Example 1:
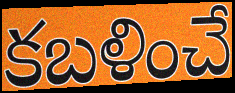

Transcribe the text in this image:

కబళించే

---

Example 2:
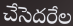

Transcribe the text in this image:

చేసెదరేల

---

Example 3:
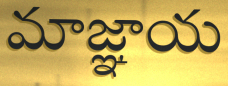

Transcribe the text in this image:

మాజ్ఞాయ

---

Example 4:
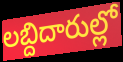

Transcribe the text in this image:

లబ్దిదారుల్లో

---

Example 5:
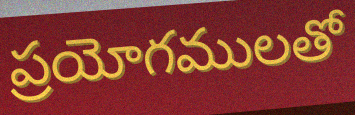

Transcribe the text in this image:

ప్రయోగములతో